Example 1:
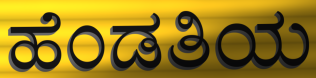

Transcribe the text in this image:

ಹೆಂಡತಿಯ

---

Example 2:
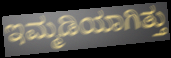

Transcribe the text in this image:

ಇಮ್ಮಡಿಯಾಗಿತ್ತು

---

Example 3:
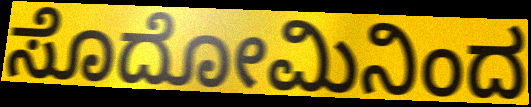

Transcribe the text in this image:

ಸೊದೋಮಿನಿಂದ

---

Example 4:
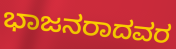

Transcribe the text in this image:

ಭಾಜನರಾದವರ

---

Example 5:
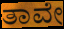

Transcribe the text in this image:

ತಾವೇ